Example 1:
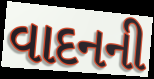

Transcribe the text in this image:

વાદનની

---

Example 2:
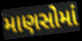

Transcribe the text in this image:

માણસોમાં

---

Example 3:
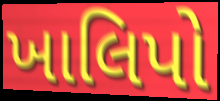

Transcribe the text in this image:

ખાલિપો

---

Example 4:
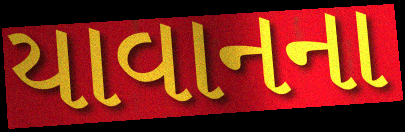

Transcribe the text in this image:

યાવાનના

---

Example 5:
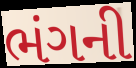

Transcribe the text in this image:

ભંગની